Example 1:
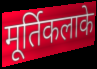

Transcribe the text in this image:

मूर्तिकलाके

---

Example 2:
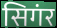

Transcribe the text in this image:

सिगंर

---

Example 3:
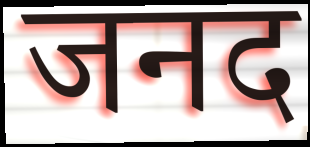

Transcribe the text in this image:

जनद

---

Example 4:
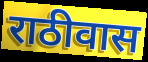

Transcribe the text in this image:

राठीवास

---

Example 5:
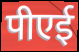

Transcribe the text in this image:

पीएई